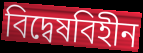
বিদ্বেষবিহীন